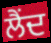
ਲੈਂਦ